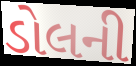
ડોલની